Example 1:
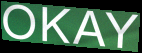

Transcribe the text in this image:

OKAY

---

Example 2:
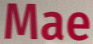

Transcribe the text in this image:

Mae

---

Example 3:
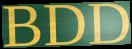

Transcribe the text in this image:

BDD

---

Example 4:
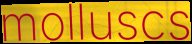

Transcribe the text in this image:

molluscs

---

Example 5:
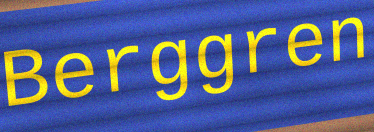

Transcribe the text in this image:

Berggren